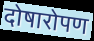
दोषारोपण